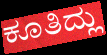
ಕೂತಿದ್ಲು